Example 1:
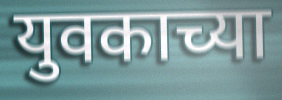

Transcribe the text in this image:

युवकाच्या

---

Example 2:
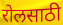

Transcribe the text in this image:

रोलसाठी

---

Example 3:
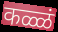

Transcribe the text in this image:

कळ्ळं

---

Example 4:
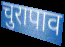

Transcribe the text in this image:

चुरापाव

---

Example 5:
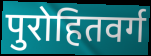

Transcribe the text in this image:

पुरोहितवर्ग